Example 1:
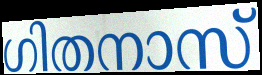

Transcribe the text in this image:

ഗിതനാസ്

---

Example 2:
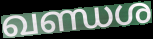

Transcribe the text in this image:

ഖണ്ഡശ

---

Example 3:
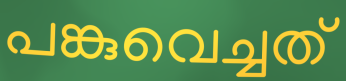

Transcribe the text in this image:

പങ്കുവെച്ചത്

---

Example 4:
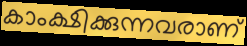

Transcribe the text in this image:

കാംക്ഷിക്കുന്നവരാണ്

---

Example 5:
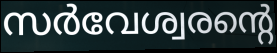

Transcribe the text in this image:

സർവേശ്വരന്റെ